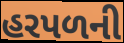
હરપળની